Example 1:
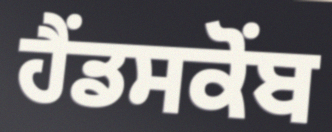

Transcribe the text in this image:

ਹੈਂਡਸਕੋਂਬ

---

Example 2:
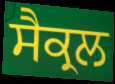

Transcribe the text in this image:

ਸੈਕ੍ਰਲ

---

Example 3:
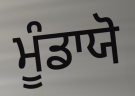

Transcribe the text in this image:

ਮੂੰਡਾਯੋ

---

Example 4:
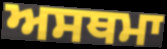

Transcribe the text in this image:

ਅਸਥਮਾ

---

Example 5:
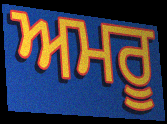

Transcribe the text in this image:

ਅਮਰੂ